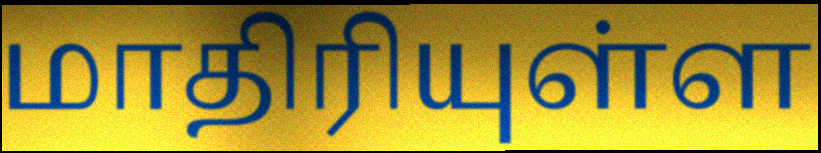
மாதிரியுள்ள